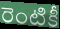
రెంటికీ